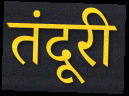
तंदूरी